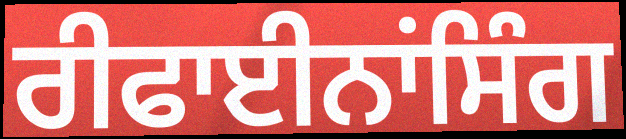
ਰੀਫਾਈਨਾਂਸਿੰਗ